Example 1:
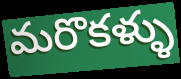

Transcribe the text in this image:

మరొకళ్ళు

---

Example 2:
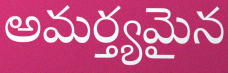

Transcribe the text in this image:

అమర్త్యమైన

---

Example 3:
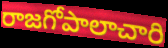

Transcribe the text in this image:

రాజగోపాలాచారి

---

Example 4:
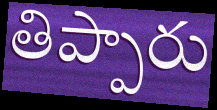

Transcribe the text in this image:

తిప్పారు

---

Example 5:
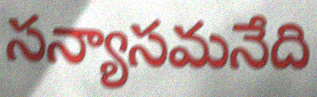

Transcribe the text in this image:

సన్యాసమనేది